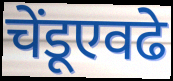
चेंडूएवढे